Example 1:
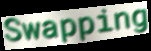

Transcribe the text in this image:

Swapping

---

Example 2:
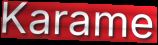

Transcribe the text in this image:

Karame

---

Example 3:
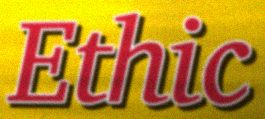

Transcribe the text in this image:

Ethic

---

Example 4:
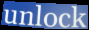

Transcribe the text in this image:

unlock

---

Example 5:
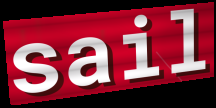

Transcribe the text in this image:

sail